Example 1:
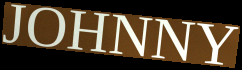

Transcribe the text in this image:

JOHNNY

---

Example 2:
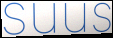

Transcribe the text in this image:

suus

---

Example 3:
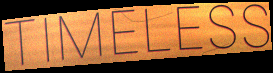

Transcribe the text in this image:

TIMELESS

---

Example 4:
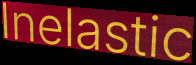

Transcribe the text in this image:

Inelastic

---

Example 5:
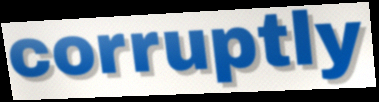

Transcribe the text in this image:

corruptly